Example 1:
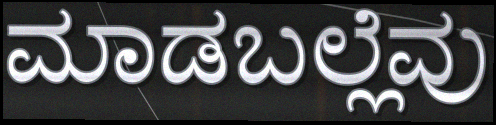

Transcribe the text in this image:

ಮಾಡಬಲ್ಲೆವು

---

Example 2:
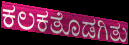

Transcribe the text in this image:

ಕಲಕತೊಡಗಿತು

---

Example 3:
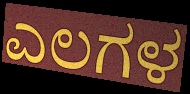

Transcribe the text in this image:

ಎಲಗಳ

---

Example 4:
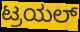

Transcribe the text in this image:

ಟ್ರಯಲ್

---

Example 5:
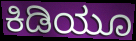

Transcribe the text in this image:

ಕಿಡಿಯೂ